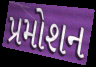
પ્રમોશન